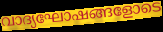
വാദ്യഘോഷങ്ങളോടെ